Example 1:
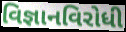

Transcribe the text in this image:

વિજ્ઞાનવિરોધી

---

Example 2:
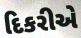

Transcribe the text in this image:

દિકરીએ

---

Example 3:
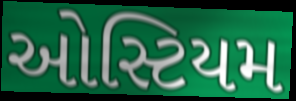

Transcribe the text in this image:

ઓસ્ટિયમ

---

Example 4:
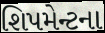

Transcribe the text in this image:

શિપમેન્ટના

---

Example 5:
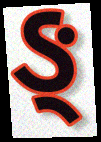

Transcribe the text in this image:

ઙ્